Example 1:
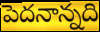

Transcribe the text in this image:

పెదనాన్నది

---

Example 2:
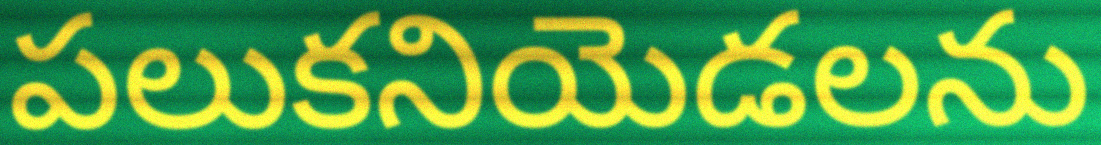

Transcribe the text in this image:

పలుకనియెడలను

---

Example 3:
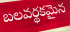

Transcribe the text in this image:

బలవర్థకమైన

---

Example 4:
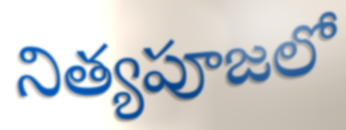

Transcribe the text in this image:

నిత్యపూజలో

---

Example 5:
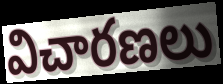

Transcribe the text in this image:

విచారణలు